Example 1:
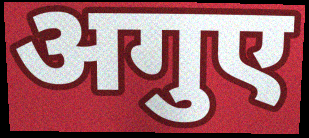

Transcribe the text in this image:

अगुए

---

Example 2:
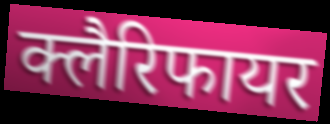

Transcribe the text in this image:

क्लैरिफायर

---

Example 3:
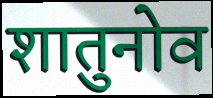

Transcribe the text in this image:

शातुनोव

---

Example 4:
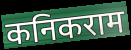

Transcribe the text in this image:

कनिकराम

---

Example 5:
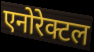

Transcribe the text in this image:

एनोरेक्टल